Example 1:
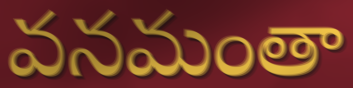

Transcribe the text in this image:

వనమంతా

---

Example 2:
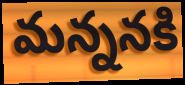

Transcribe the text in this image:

మన్ననకి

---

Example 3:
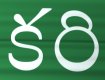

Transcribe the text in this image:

కరి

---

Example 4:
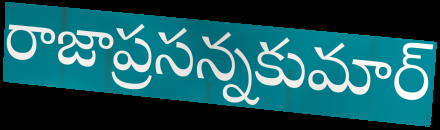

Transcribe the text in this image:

రాజాప్రసన్నకుమార్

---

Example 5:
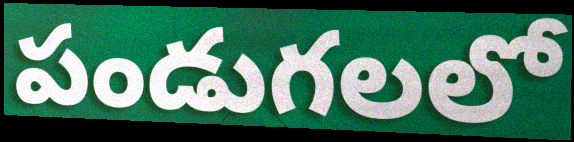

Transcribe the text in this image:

పండుగలలో